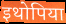
इथोपिया